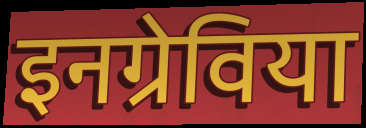
इनग्रेविया